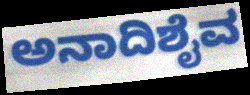
ಅನಾದಿಶೈವ